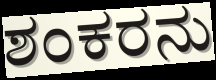
ಶಂಕರನು